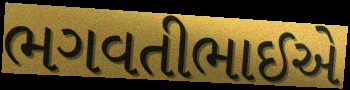
ભગવતીભાઈએ